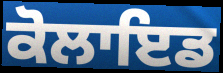
ਕੋਲਾਇਡ